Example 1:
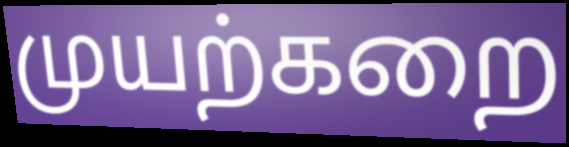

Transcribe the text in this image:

முயற்கறை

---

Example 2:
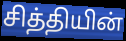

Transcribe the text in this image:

சித்தியின்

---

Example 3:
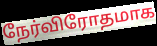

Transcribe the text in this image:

நேர்விரோதமாக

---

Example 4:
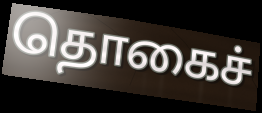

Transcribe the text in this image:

தொகைச்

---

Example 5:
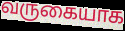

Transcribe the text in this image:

வருகையாக